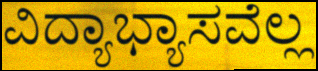
ವಿದ್ಯಾಭ್ಯಾಸವೆಲ್ಲ